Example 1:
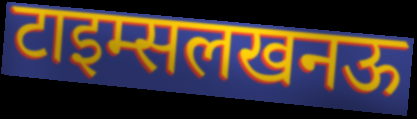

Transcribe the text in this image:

टाइम्सलखनऊ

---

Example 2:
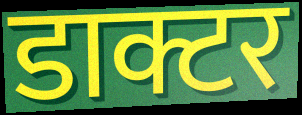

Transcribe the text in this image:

डाक्टर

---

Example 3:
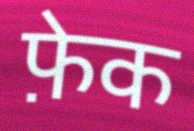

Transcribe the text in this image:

फ़ेक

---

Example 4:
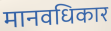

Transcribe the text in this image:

मानवधिकार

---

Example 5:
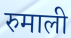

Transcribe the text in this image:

रुमाली